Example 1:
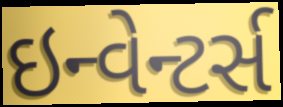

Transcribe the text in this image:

ઇન્વેન્ટર્સ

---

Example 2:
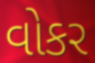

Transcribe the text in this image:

વોકર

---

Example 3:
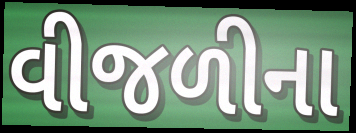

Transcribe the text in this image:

વીજળીના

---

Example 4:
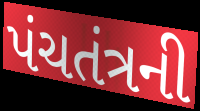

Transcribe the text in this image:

પંચતંત્રની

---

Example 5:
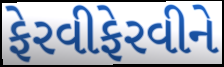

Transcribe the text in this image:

ફેરવીફેરવીને